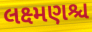
લક્ષ્મણશ્ચ